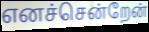
எனச்சென்றேன்